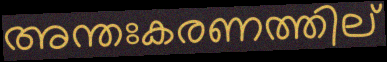
അന്തഃകരണത്തില്